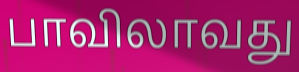
பாவிலாவது